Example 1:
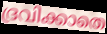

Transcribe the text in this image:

ദ്രവിക്കാതെ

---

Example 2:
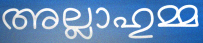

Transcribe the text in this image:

അല്ലാഹുമ്മ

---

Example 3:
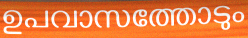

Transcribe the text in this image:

ഉപവാസത്തോടും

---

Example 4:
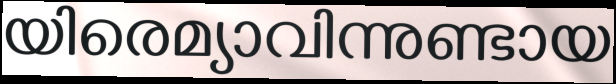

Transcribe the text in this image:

യിരെമ്യാവിന്നുണ്ടായ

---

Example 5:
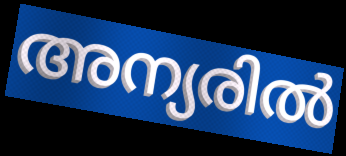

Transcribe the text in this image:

അന്യരിൽ